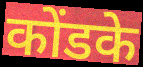
कोंडके